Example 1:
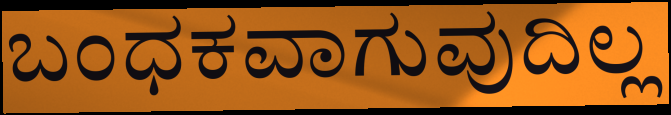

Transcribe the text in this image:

ಬಂಧಕವಾಗುವುದಿಲ್ಲ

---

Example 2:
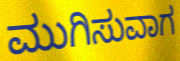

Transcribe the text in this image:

ಮುಗಿಸುವಾಗ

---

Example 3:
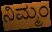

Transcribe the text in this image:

ನಿಮ್ಮಂ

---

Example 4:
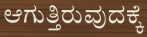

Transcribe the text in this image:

ಆಗುತ್ತಿರುವುದಕ್ಕೆ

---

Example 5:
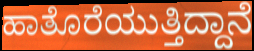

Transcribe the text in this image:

ಹಾತೊರೆಯುತ್ತಿದ್ದಾನೆ